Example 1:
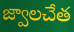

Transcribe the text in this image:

జ్వాలచేత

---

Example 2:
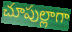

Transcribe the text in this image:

చూపుల్లాగా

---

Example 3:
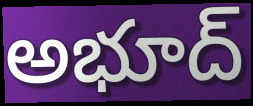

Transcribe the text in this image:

అభూద్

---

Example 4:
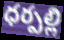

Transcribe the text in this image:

ధర్పల్లి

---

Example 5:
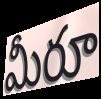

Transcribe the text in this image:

మీరూ